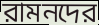
রামনদের